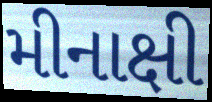
મીનાક્ષી